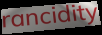
rancidity